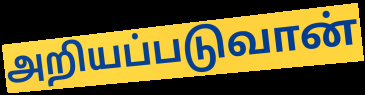
அறியப்படுவான்